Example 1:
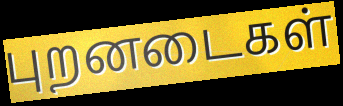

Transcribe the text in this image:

புறனடைகள்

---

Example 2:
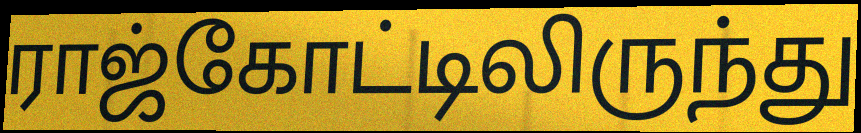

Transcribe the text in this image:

ராஜ்கோட்டிலிருந்து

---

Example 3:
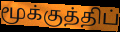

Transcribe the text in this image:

மூக்குத்திப்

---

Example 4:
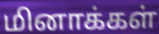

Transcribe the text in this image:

மினாக்கள்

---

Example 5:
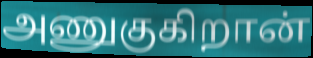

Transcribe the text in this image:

அணுகுகிறான்